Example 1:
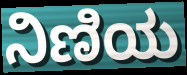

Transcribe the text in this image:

ನಿಣಿಯ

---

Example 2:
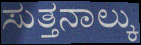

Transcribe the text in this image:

ಸುತ್ತನಾಲ್ಕು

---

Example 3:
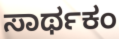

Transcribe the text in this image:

ಸಾರ್ಥಕಂ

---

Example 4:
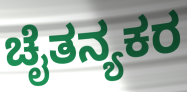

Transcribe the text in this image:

ಚೈತನ್ಯಕರ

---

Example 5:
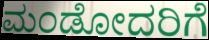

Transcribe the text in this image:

ಮಂಡೋದರಿಗೆ